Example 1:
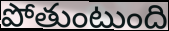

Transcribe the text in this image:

పోతుంటుంది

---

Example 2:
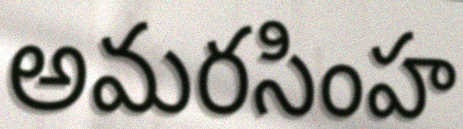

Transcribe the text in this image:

అమరసింహ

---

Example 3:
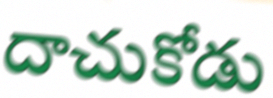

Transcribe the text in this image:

దాచుకోడు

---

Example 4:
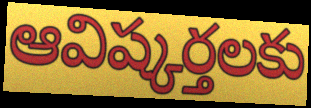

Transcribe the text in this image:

ఆవిష్కర్తలకు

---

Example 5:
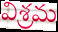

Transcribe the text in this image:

విశ్రమ